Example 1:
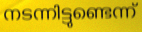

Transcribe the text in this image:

നടന്നിട്ടുണ്ടെന്ന്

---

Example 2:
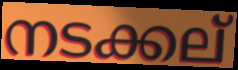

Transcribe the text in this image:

നടക്കല്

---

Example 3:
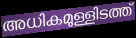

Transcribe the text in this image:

അധികമുള്ളിടത്ത്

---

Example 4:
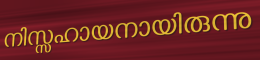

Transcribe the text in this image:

നിസ്സഹായനായിരുന്നു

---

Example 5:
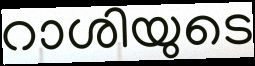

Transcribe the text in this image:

റാശിയുടെ